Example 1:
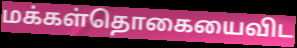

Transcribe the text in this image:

மக்கள்தொகையைவிட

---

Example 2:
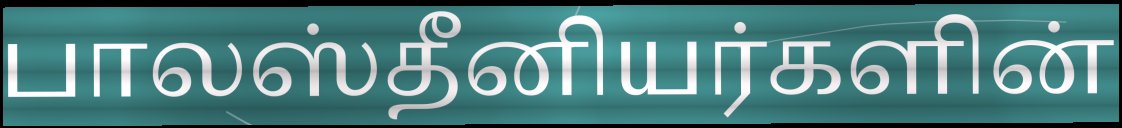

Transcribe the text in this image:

பாலஸ்தீனியர்களின்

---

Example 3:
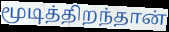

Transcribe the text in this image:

மூடித்திறந்தான்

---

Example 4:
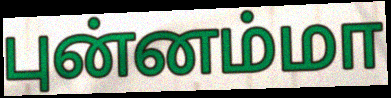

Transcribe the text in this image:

புன்னம்மா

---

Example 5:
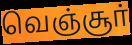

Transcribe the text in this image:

வெஞ்சூர்